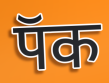
पॅक